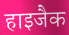
हाइजैक